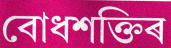
বোধশক্তিৰ